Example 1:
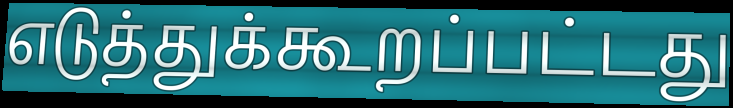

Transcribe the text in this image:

எடுத்துக்கூறப்பட்டது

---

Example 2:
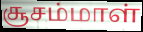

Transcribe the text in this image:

சூசம்மாள்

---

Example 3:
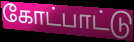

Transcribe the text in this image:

கோட்பாட்டு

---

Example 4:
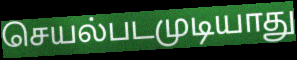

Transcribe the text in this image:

செயல்படமுடியாது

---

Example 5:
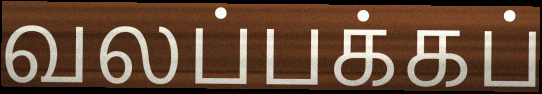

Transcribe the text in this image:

வலப்பக்கப்